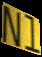
Nl